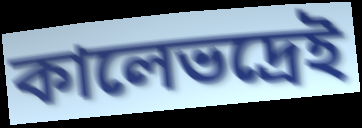
কালেভদ্রেই